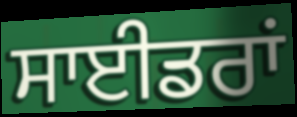
ਸਾਈਡਰਾਂ